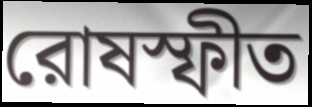
রোষস্ফীত